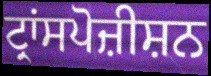
ਟ੍ਰਾਂਸਪੋਜ਼ੀਸ਼ਨ